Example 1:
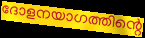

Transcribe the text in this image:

ദോളനയാഗത്തിന്റെ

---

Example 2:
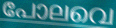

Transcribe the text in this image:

പോലവെ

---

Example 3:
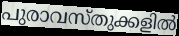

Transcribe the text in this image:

പുരാവസ്തുക്കളിൽ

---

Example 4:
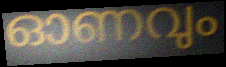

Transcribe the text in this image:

ഓണവും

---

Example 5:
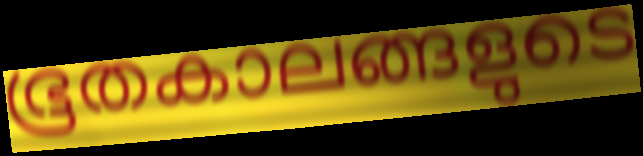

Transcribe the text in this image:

ഭൂതകാലങ്ങളുടെ